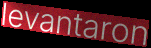
levantaron